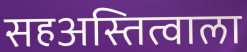
सहअस्तित्वाला